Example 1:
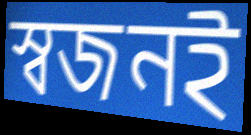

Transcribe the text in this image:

স্বজনই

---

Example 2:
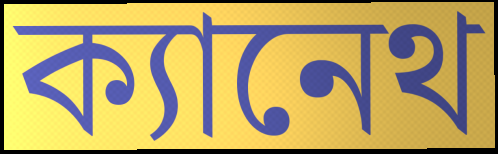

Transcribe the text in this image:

ক্যানেথ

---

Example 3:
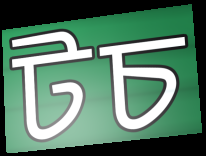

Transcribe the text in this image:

টচ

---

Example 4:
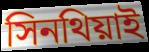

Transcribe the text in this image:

সিনথিয়াই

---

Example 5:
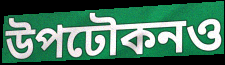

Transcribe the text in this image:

উপঢৌকনও